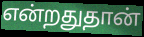
என்றதுதான்